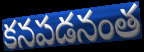
కనపడనంత